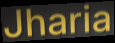
Jharia